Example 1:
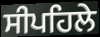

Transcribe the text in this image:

ਸੀਪਹਿਲੇ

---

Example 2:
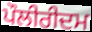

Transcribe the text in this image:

ਪੌਲੀਰੀਦਮ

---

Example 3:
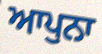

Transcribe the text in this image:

ਆਪੁਨਾ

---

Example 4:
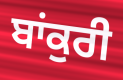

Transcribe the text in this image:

ਬਾਂਕੁਰੀ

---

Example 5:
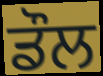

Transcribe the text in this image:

ਡੌਲ